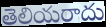
తెలియరాదు